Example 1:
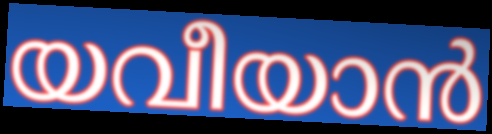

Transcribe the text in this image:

യവീയാൻ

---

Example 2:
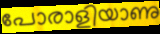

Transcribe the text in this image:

പോരാളിയാണു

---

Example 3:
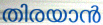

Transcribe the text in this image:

തിരയാൻ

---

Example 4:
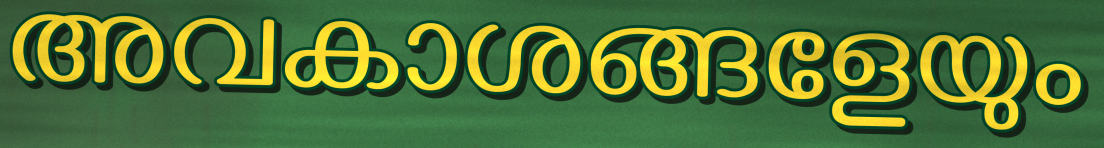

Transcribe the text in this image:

അവകാശങ്ങളേയും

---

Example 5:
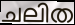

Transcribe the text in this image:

ചലിത